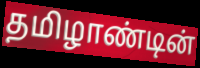
தமிழாண்டின்